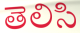
తెలిసి